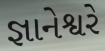
જ્ઞાનેશ્વરે